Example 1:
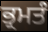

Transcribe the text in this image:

ਭ੍ਰਮਤੰ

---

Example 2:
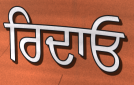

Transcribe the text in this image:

ਰਿਦਾਓ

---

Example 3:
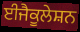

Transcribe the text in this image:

ਈਜੈਕੂਲੇਸ਼ਨ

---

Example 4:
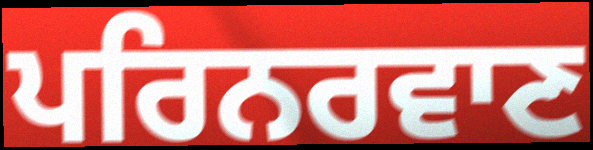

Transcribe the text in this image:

ਪਰਿਨਰਵਾਣ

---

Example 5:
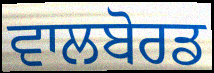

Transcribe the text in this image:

ਵਾਲਬੋਰਡ